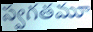
స్వగతమూ